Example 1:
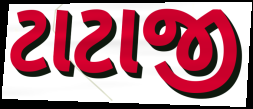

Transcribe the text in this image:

ટાટાજી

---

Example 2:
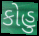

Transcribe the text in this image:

કોહુ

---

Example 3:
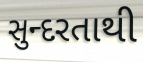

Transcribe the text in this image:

સુન્દરતાથી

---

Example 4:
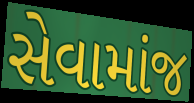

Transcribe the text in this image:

સેવામાંજ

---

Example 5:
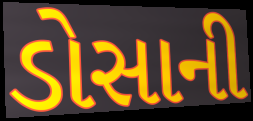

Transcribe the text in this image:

ડોસાની